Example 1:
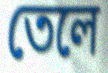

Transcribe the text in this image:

তেলে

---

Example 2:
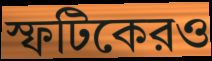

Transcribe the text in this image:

স্ফটিকেরও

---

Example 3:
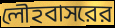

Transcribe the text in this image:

লৌহবাসরের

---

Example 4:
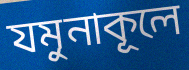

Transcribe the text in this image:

যমুনাকূলে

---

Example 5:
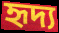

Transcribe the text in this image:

হৃদ্য